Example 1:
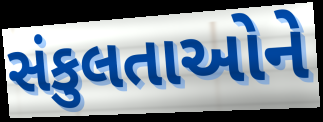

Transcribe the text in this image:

સંકુલતાઓને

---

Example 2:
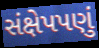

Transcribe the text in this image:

સંક્ષેપપણું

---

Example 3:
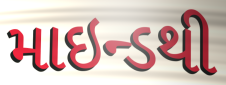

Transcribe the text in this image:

માઇન્ડથી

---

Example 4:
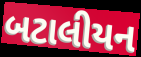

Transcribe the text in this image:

બટાલીયન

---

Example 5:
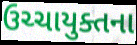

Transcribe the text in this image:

ઉચ્ચાયુક્તના